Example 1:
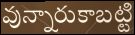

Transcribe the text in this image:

వున్నారుకాబట్టి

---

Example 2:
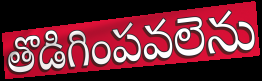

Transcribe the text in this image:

తొడిగింపవలెను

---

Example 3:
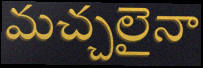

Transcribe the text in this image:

మచ్చలైనా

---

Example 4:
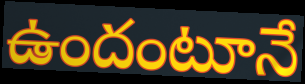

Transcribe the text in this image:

ఉందంటూనే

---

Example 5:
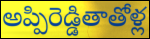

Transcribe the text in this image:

అప్పిరెడ్డితాతోళ్ల